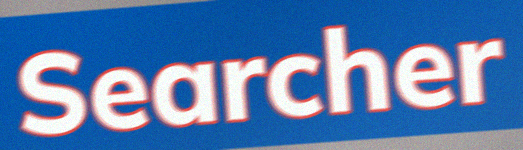
Searcher